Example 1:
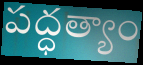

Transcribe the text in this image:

పద్ధత్యాం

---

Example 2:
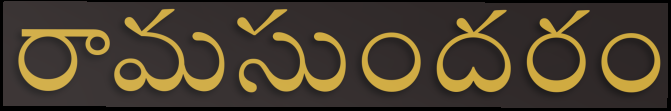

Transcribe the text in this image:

రామసుందరం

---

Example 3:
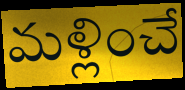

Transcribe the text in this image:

మళ్లించే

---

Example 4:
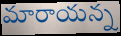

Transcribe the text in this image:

మారాయన్న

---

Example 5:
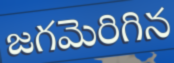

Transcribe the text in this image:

జగమెరిగిన